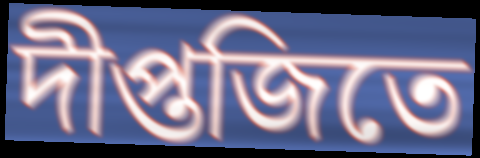
দীপ্তজিতে